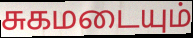
சுகமடையும்